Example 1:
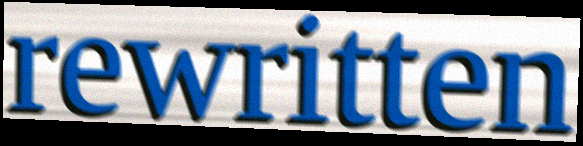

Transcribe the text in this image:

rewritten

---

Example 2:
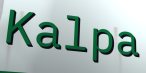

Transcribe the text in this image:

Kalpa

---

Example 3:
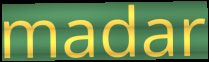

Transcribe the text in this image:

madar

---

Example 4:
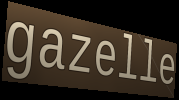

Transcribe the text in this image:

gazelle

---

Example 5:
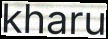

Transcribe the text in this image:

kharu